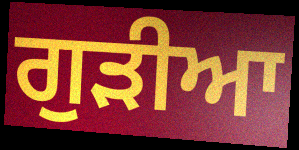
ਗੁੜੀਆ